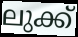
ലുക്ക്